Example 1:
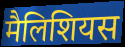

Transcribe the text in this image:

मैलिशियस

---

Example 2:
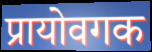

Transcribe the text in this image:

प्रायोवगक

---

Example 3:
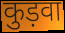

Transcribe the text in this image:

कुड़वा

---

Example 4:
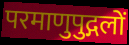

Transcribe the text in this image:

परमाणुपुद्गलों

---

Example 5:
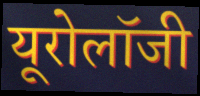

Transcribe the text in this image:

यूरोलॉजी